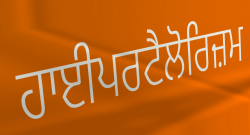
ਹਾਈਪਰਟੈਲੋਰਿਜ਼ਮ